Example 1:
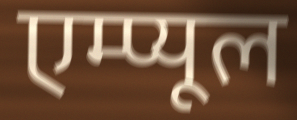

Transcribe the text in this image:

एम्प्यूल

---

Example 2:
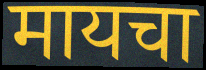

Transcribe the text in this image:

मायचा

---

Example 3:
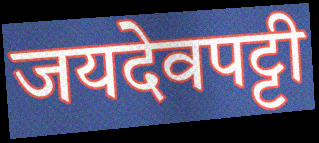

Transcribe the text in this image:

जयदेवपट्टी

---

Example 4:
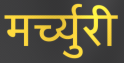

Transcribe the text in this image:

मर्च्युरी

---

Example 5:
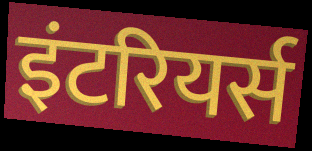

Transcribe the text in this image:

इंटरियर्स